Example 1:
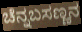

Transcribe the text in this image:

ಚೆನ್ನಬಸಣ್ಣನ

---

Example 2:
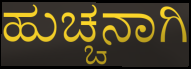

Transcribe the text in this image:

ಹುಚ್ಚನಾಗಿ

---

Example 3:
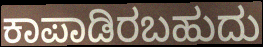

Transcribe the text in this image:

ಕಾಪಾಡಿರಬಹುದು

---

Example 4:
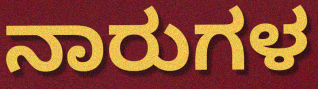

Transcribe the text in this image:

ನಾರುಗಳ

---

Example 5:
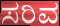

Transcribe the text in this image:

ಸರಿವ